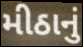
મીઠાનું